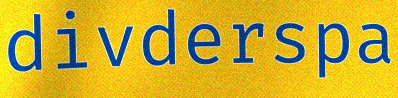
divderspa